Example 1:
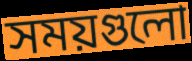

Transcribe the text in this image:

সময়গুলো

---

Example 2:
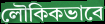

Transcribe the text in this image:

লৌকিকভাবে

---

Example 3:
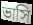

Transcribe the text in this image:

ভাসি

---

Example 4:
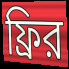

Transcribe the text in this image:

ফ্রির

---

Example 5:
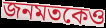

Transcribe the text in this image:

জনমতকেও